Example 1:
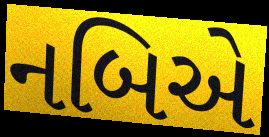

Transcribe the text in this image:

નબિએ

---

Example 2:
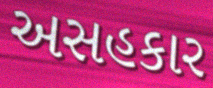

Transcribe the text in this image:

અસહકાર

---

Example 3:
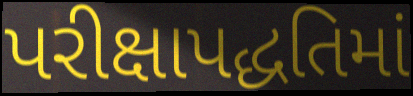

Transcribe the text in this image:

પરીક્ષાપદ્ધતિમાં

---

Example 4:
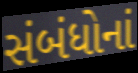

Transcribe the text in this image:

સંબંધોનાં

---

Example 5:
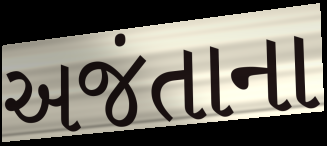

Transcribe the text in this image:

અજંતાના